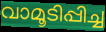
വാമൂടിപ്പിച്ച